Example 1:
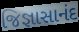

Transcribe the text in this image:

જિજ્ઞાસાનંદ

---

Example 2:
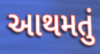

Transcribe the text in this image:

આથમતું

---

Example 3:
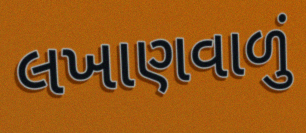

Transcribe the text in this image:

લખાણવાળું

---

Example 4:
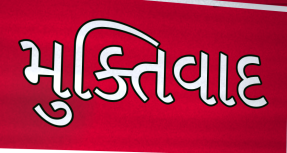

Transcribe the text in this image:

મુક્તિવાદ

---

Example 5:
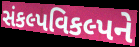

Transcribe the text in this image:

સંકલ્પવિકલ્પને